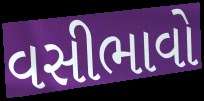
વસીભાવો